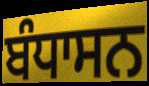
ਬੰਧਾਸਨ